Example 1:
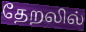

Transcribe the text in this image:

தேறலில்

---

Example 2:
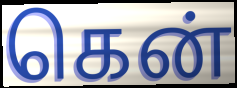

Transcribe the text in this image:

கென்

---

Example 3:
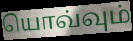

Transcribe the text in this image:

யொவ்வும்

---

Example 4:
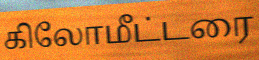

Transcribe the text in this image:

கிலோமீட்டரை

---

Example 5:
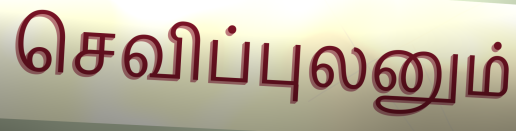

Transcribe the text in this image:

செவிப்புலனும்